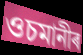
ওচমানীৰ